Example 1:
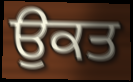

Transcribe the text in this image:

ਉਕਤ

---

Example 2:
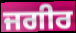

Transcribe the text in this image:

ਜਗੀਰ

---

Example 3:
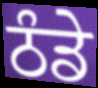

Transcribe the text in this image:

ਠੰਡੇ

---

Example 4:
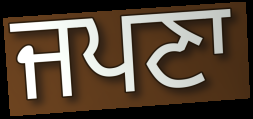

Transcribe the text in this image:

ਜਪਣਾ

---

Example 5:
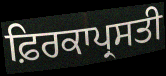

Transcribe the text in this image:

ਫ਼ਿਰਕਾਪ੍ਰਸਤੀ